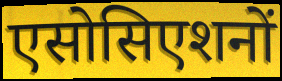
एसोसिएशनों